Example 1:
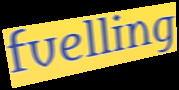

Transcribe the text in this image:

fuelling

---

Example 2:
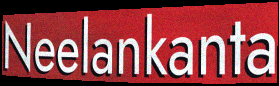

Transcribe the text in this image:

Neelankanta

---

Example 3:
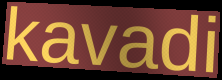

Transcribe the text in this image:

kavadi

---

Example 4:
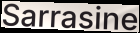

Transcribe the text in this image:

Sarrasine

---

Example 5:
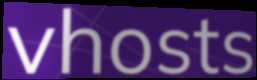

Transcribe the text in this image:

vhosts